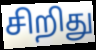
சிறிது